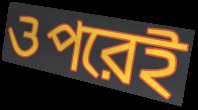
ওপরেই